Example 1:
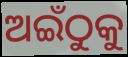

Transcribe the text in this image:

ଅଇଁଠୁକୁ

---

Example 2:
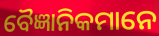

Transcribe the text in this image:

ବୈଜ୍ଞାନିକମାନେ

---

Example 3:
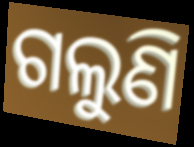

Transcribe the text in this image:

ଗଲୁଣି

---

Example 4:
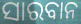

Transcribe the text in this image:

ସାରବାନ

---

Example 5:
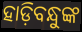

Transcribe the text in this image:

ହାଡ଼ିବନ୍ଧୁଙ୍କ